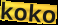
koko